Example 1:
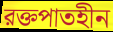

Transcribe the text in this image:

রক্তপাতহীন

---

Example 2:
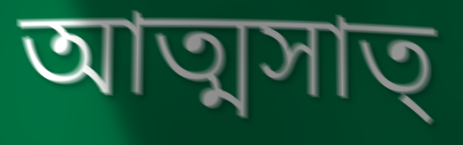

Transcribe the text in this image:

আত্মসাত্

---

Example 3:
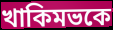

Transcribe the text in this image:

খাকিমভকে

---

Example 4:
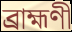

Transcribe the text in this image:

ব্রাহ্মণী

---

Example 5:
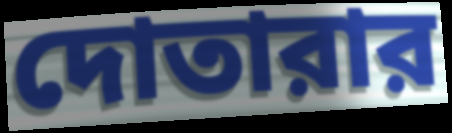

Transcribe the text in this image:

দোতারার